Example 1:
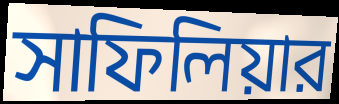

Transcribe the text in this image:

সাফিলিয়ার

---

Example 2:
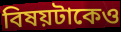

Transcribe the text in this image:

বিষয়টাকেও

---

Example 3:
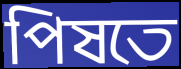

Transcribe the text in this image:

পিষতে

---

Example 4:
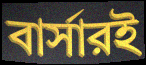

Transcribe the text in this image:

বার্সারই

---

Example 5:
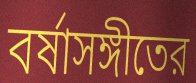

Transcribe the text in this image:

বর্ষাসঙ্গীতের